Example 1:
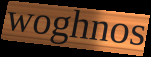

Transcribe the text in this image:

woghnos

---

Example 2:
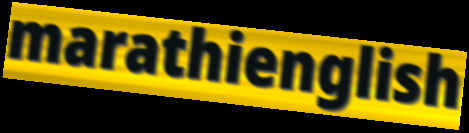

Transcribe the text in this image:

marathienglish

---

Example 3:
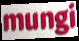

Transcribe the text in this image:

mungi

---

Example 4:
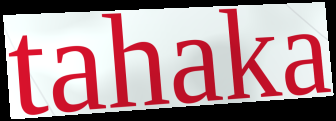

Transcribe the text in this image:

tahaka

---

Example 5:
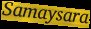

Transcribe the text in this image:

Samaysara